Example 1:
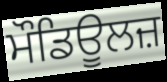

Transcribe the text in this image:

ਮੌਡਿਊਲਜ਼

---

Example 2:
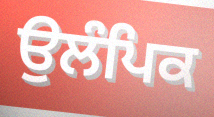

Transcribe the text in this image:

ਉਲੰਪਿਕ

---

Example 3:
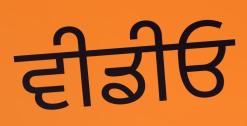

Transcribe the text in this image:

ਵੀਡੀਓ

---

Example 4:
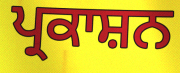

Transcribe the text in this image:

ਪ੍ਰਕਾਸ਼ਨ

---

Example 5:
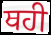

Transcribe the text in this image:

ਥਹੀ